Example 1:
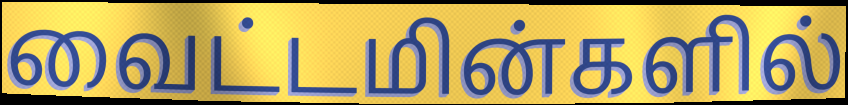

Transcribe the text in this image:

வைட்டமின்களில்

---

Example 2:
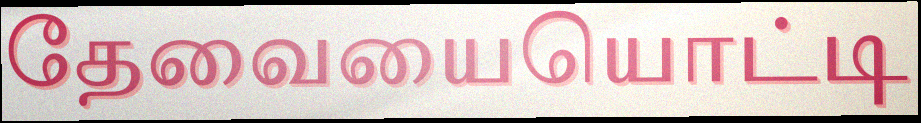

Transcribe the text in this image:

தேவையையொட்டி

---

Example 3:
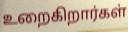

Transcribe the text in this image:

உறைகிறார்கள்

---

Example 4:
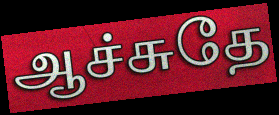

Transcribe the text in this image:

ஆச்சுதே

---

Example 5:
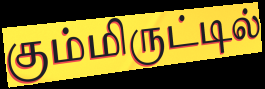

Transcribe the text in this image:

கும்மிருட்டில்